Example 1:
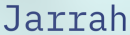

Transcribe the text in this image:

Jarrah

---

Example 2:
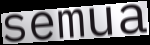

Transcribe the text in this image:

semua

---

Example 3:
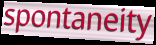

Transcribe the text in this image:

spontaneity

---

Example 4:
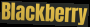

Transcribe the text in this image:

Blackberry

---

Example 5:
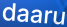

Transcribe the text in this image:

daaru